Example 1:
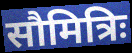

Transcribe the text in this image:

सौमित्रिः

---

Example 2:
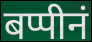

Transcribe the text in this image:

बप्पीनं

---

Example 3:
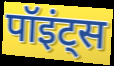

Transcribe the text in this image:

पॉइंट्स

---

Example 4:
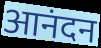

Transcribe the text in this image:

आनंदन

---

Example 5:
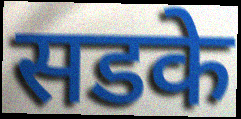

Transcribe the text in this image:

सडके